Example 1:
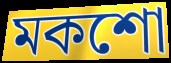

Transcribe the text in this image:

মকশো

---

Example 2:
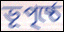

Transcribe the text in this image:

ভূপৃষ্ঠে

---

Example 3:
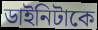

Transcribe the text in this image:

ডাইনিটাকে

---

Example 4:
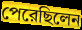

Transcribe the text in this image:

পেরেছিলেন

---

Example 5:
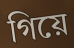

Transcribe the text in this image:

গিয়ে